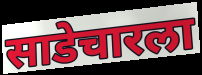
साडेचारला